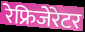
रेफ्रिजेरेटर